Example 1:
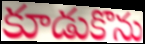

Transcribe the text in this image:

కూడుకొను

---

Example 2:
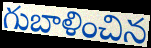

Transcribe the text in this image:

గుబాళించిన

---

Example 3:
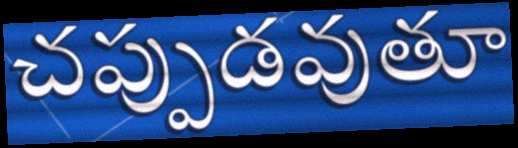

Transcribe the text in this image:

చప్పుడవుతూ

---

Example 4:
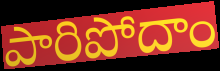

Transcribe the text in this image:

పారిపోదాం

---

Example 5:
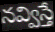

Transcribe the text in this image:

నవ్విస్తే